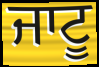
ਜਾਟੂ